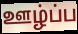
ஊழ்ப்ப